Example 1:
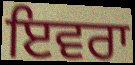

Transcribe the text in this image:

ਇਵਰਾ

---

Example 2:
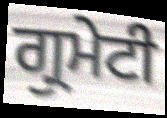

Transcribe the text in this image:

ਗ੍ਰੁਮੇਟੀ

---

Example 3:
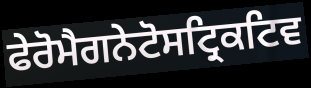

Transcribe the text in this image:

ਫੇਰੋਮੈਗਨੇਟੋਸਟ੍ਰਿਕਟਿਵ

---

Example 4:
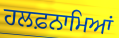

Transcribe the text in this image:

ਹਲਫ਼ਨਾਮਿਆਂ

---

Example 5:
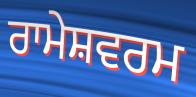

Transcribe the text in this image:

ਰਾਮੇਸ਼ਵਰਮ